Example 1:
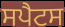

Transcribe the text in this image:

ਸਪੈਟਸ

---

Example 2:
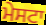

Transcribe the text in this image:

ਮੇਸਟਾ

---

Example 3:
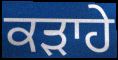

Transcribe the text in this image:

ਕੜਾਹੇ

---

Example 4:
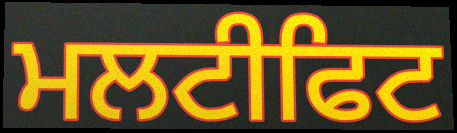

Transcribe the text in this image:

ਮਲਟੀਫਿਟ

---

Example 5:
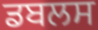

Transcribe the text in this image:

ਡਬਲਸ